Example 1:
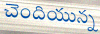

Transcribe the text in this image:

చెందియున్న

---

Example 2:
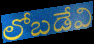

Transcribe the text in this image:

లోబడేవి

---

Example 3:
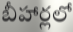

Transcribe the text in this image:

బీహార్లలో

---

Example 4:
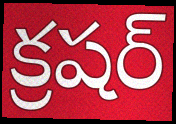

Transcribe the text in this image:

క్రషర్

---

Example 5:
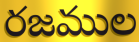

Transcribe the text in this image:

రజముల